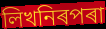
লিখনিৰপৰা